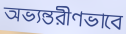
অভ্যন্তরীণভাবে